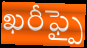
ఖరీఫ్పై